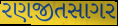
રણજીતસાગર